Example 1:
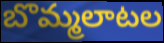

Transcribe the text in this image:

బొమ్మలాటల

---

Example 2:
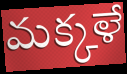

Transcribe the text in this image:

మక్కళే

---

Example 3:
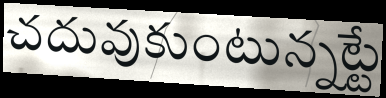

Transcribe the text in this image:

చదువుకుంటున్నట్టే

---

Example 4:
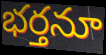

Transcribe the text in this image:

భర్తనూ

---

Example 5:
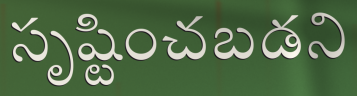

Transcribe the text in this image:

సృష్టించబడని